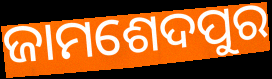
ଜାମଶେଦପୁର